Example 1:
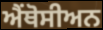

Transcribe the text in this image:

ਐਂਥੋਸੀਅਨ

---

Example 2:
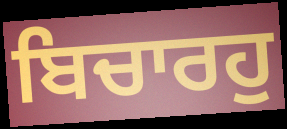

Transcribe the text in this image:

ਬਿਚਾਰਹੁ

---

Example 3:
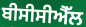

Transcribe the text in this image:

ਬੀਸੀਸੀਐੱਲ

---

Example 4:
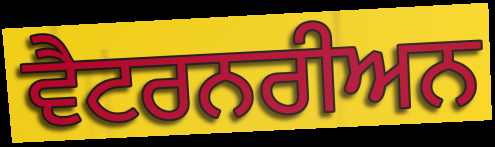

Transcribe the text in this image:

ਵੈਟਰਨਰੀਅਨ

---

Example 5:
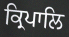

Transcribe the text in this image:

ਕ੍ਰਿਪਾਲਿ